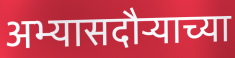
अभ्यासदौऱ्याच्या